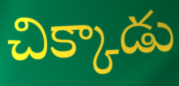
చిక్కాడు